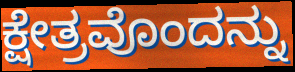
ಕ್ಷೇತ್ರವೊಂದನ್ನು